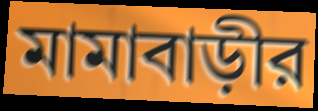
মামাবাড়ীর